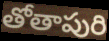
తోతాపురి